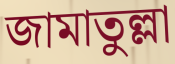
জামাতুল্লা